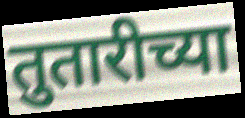
तुतारीच्या